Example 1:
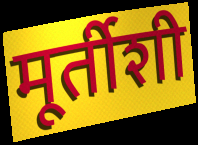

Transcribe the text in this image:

मूर्तीशी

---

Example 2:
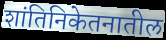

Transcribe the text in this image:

शांतिनिकेतनातील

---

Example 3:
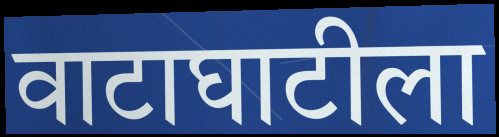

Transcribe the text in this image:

वाटाघाटीला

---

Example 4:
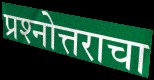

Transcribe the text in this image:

प्रश्‍नोत्तराचा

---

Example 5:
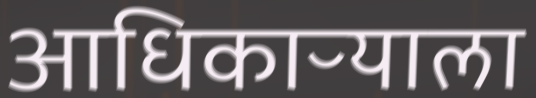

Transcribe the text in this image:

आधिकाऱ्याला